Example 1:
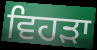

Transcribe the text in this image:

ਵਿਹੜਾ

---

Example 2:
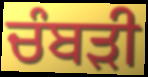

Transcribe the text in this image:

ਚੰਬੜੀ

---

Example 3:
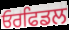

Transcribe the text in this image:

ਓਰਫਿਡਲ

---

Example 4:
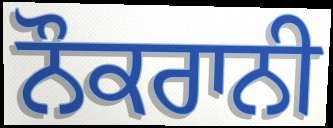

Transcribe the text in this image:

ਨੌਕਰਾਨੀ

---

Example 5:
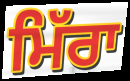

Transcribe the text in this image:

ਮਿੱਰਾ